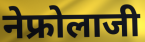
नेफ्रोलाजी